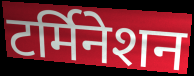
टर्मिनेशन